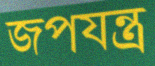
জপযন্ত্র